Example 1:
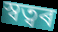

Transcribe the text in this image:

স্বত্বৰ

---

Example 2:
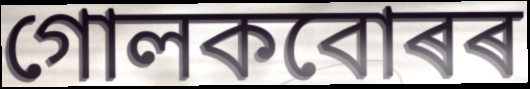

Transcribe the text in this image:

গোলকবোৰৰ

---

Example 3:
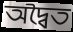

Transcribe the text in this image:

অদ্বৈত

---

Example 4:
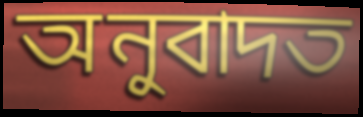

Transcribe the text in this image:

অনুবাদত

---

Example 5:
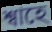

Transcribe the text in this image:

শ্বাহে